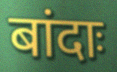
बांदाः